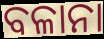
ବଳାନା